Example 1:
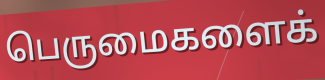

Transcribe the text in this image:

பெருமைகளைக்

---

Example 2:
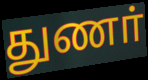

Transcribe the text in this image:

துணர்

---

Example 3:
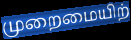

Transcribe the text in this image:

முறைமையிற்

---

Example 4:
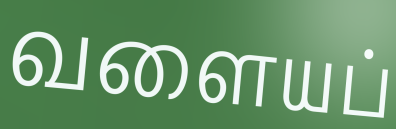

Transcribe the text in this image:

வளையப்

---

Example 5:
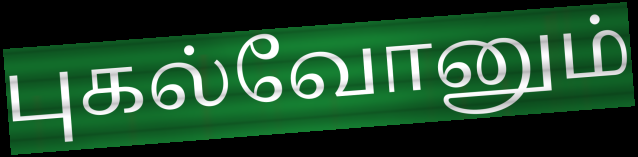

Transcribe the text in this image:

புகல்வோனும்